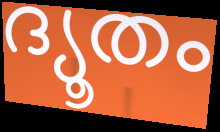
ദ്യൂതം